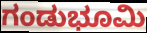
ಗಂಡುಭೂಮಿ